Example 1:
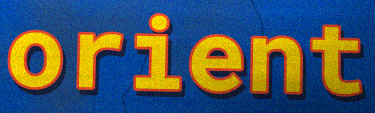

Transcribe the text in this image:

orient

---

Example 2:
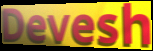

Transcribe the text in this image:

Devesh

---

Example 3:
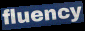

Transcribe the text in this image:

fluency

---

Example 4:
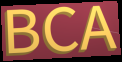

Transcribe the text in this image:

BCA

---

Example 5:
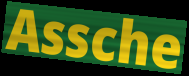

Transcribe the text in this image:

Assche